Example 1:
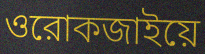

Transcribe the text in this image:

ওরোকজাইয়ে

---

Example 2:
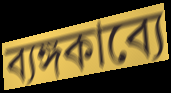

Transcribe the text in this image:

ব্যঙ্গকাব্যে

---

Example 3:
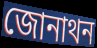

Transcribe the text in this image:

জোনাথন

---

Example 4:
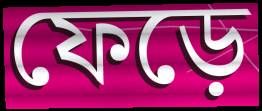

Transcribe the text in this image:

ফেড়ে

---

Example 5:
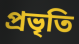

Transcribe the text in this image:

প্রভৃতি